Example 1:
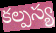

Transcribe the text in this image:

కల్పస్య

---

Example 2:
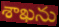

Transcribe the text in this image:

శాఖను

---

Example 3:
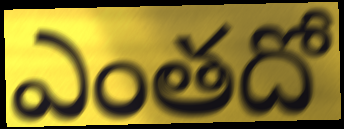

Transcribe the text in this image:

ఎంతదో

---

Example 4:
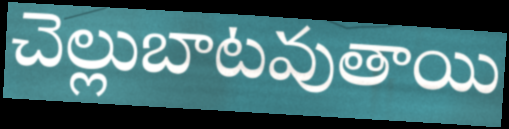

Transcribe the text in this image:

చెల్లుబాటవుతాయి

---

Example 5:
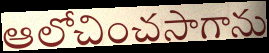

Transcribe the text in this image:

ఆలోచించసాగాను